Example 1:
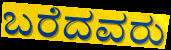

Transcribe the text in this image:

ಬರೆದವರು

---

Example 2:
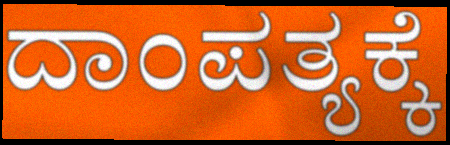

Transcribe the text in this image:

ದಾಂಪತ್ಯಕ್ಕೆ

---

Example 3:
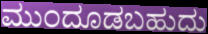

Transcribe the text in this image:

ಮುಂದೂಡಬಹುದು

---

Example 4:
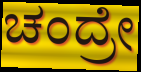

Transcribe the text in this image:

ಚಂದ್ರೇ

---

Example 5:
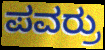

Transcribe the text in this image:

ಪವರ್ರು